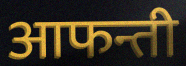
आफन्ती